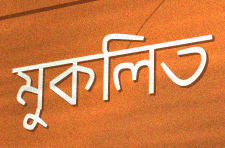
মুকলিত